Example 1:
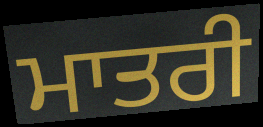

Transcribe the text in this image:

ਮਾਤਰੀ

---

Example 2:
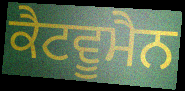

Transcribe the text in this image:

ਕੈਟਵੂਮੈਨ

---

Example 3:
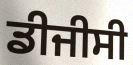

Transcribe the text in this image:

ਡੀਜੀਸੀ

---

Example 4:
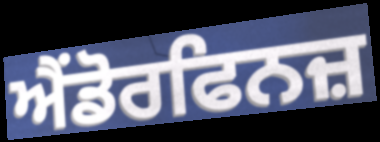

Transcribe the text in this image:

ਐਂਡੋਰਫਿਨਜ਼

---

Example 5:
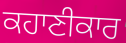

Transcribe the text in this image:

ਕਹਾਣੀਕਾਰ